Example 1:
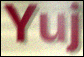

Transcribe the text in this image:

Yuj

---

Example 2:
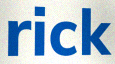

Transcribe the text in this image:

rick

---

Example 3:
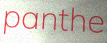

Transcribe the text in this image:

panthe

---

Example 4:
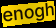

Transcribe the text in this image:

enogh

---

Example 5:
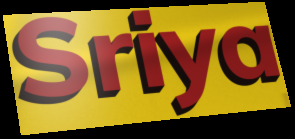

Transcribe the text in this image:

Sriya